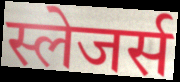
स्लेजर्स